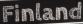
Finland